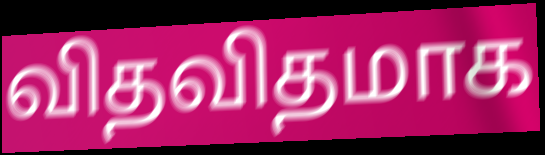
விதவிதமாக